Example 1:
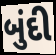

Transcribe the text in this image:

બુંદી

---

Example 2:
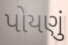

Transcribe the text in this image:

પોયણું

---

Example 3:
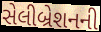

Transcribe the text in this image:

સેલીબ્રેશનની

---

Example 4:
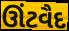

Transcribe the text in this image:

ઊંટવૈદ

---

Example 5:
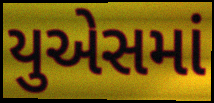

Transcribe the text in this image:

યુએસમાં